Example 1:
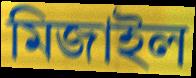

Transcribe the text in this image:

মিজাইল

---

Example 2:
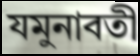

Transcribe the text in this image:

যমুনাবতী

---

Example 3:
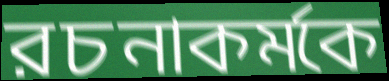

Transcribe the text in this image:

রচনাকর্মকে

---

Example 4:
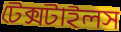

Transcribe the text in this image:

টেক্সটাইলস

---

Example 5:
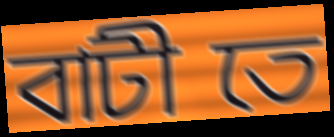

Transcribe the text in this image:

বাটীতে